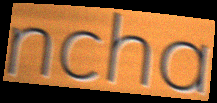
ncha